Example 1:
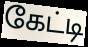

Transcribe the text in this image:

கேட்டி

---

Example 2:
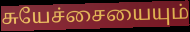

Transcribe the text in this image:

சுயேச்சையையும்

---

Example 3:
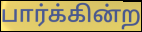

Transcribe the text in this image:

பார்க்கின்ற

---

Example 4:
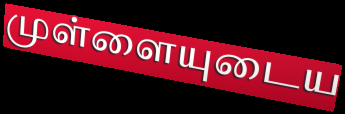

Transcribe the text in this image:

முள்ளையுடைய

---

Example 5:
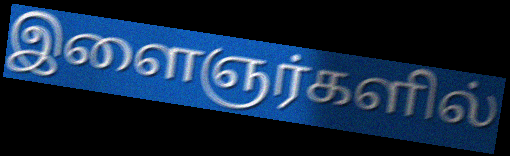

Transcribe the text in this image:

இளைஞர்களில்